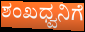
ಶಂಖಧ್ವನಿಗೆ